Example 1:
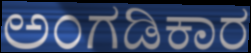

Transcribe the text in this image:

ಅಂಗಡಿಕಾರ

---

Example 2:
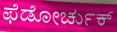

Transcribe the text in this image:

ಫೆಡೋರ್ಚುಕ್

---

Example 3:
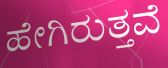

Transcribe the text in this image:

ಹೇಗಿರುತ್ತವೆ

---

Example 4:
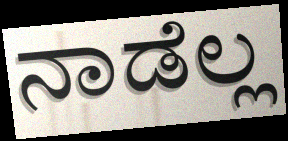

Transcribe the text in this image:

ನಾಡೆಲ್ಲ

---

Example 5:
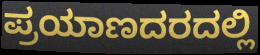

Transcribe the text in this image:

ಪ್ರಯಾಣದರದಲ್ಲಿ